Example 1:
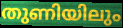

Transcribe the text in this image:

തുണിയിലും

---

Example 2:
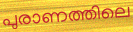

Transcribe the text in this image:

പുരാണത്തിലെ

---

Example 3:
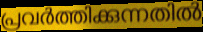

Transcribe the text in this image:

പ്രവർത്തിക്കുന്നതിൽ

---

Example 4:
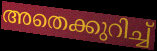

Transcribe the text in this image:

അതെക്കുറിച്ച്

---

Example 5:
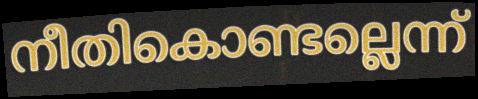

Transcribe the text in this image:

നീതികൊണ്ടല്ലെന്ന്